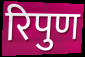
रिपुण